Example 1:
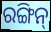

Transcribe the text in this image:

ରଙ୍ଗିନ୍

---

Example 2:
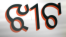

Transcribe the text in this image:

ଝୀଟ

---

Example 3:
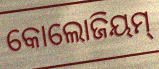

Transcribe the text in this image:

କୋଲୋଜିୟମ୍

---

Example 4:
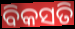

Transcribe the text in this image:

ବିକସତି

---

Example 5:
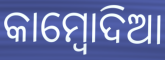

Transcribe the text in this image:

କାମ୍ବୋଦିଆ